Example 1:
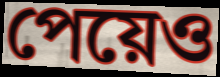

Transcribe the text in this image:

পেয়েও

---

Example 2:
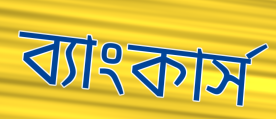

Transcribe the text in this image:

ব্যাংকার্স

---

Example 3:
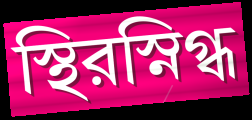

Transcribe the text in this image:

স্থিরস্নিগ্ধ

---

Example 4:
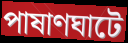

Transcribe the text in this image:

পাষাণঘাটে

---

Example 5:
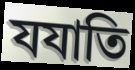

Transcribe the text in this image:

যযাতি